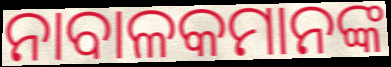
ନାବାଳକମାନଙ୍କ